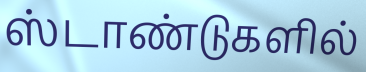
ஸ்டாண்டுகளில்